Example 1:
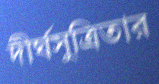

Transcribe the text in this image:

দীর্ঘসুত্রিতার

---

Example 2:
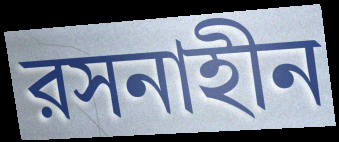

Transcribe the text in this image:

রসনাহীন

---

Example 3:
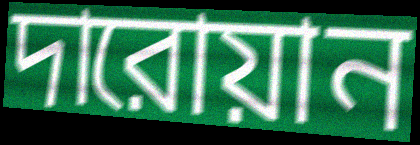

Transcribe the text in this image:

দারোয়ান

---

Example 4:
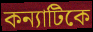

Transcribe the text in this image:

কন্যাটিকে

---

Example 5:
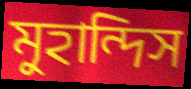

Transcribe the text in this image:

মুহান্দিস